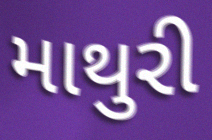
માથુરી